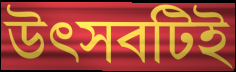
উৎসবটিই